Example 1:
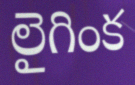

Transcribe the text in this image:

లైగింక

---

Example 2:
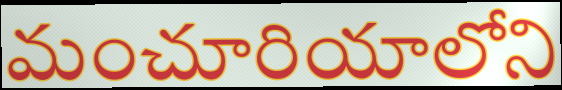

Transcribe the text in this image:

మంచూరియాలోని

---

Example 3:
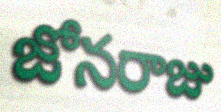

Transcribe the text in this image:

జోనరాజు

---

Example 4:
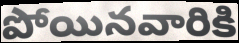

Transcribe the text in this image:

పోయినవారికి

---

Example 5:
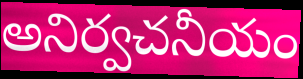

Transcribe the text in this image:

అనిర్వచనీయం